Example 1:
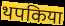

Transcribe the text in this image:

थपकिया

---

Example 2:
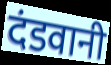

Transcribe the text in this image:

दंडवानी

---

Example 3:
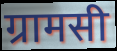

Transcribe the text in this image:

ग्रामसी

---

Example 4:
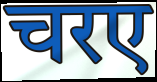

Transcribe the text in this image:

चरए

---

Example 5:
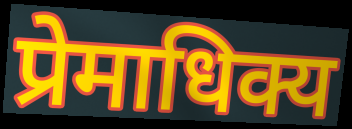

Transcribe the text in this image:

प्रेमाधिक्य